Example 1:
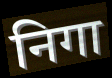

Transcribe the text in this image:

निगा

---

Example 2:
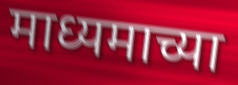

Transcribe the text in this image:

माध्यमाच्या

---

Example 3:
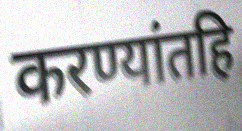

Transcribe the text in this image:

करण्यांतहि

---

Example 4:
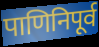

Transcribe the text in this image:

पाणिनिपूर्व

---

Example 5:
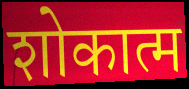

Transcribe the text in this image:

शोकात्म